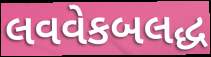
લવવેકબલદ્ધ